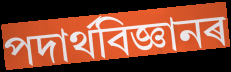
পদাৰ্থবিজ্ঞানৰ